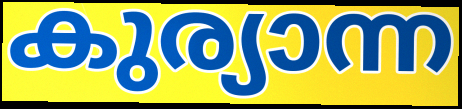
കുര്യാന്ന